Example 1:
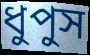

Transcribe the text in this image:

ধুপুস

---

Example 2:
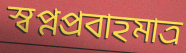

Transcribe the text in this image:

স্বপ্নপ্রবাহমাত্র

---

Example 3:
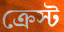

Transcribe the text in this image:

ক্রেস্ট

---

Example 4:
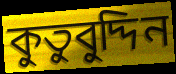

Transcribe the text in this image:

কুতুবুদ্দিন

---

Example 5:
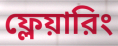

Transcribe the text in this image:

ফ্লেয়ারিং